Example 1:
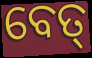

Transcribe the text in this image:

ବେତ୍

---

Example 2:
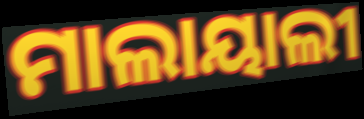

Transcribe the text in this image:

ମାଲାୟାଲୀ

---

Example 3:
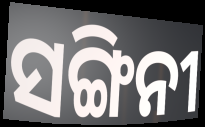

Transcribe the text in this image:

ସଙ୍ଗିନୀ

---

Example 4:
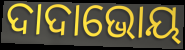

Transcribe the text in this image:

ଦାଦାଭୋୟ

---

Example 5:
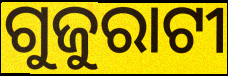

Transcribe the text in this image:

ଗୁଜୁରାଟୀ